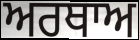
ਅਰਥਾਅ